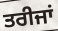
ਤਰੀਜਾਂ